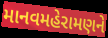
માનવમહેરામણને